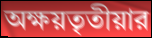
অক্ষয়তৃতীয়ার